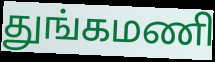
துங்கமணி